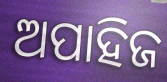
ଅପାହିଜ